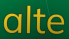
alte